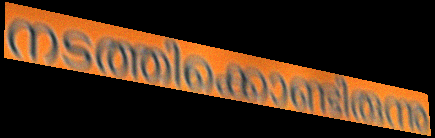
നടത്തിക്കൊണ്ടിരുന്നു